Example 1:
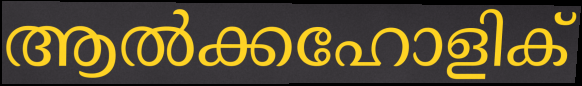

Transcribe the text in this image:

ആൽക്കഹോളിക്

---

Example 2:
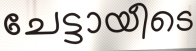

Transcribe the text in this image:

ചേട്ടായീടെ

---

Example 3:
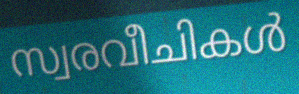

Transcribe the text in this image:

സ്വരവീചികൾ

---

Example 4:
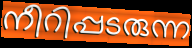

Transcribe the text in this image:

നീറിപ്പടരുന്ന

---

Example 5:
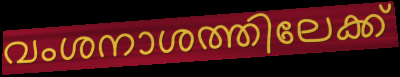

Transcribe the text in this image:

വംശനാശത്തിലേക്ക്